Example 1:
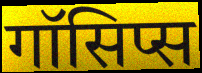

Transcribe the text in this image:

गॉसिप्स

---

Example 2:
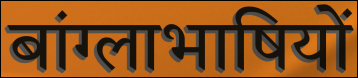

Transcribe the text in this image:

बांग्लाभाषियों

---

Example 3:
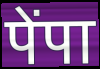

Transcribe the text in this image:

पेंपा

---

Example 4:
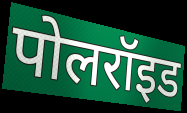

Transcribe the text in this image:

पोलरॉइड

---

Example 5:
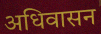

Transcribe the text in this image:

अधिवासन